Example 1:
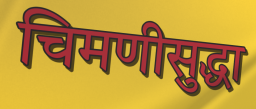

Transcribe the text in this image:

चिमणीसुद्धा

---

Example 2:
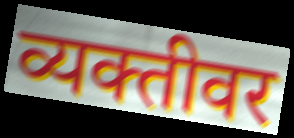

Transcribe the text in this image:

व्यक्तीवर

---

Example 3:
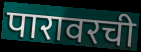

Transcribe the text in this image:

पारावरची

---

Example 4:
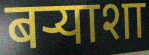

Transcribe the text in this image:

बऱ्याशा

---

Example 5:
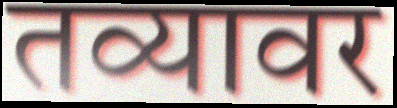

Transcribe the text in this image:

तव्यावर